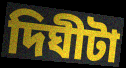
দিঘীটা